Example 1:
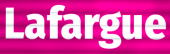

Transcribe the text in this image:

Lafargue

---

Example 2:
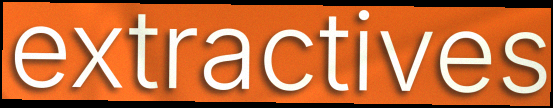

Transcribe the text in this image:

extractives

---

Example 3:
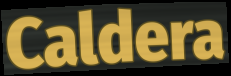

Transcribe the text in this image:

Caldera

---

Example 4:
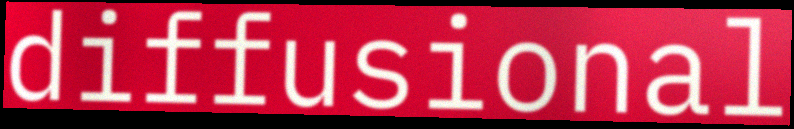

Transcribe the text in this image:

diffusional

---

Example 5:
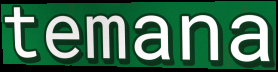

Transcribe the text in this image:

temana